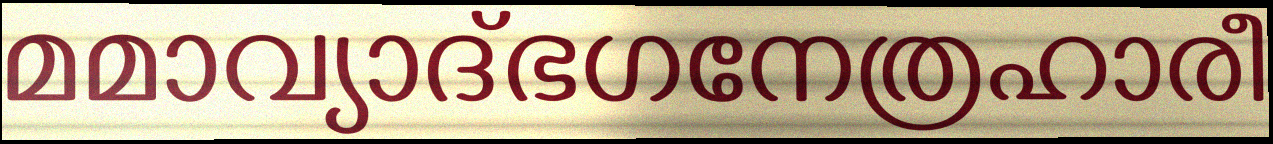
മമാവ്യാദ്ഭഗനേത്രഹാരീ